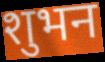
शुभन